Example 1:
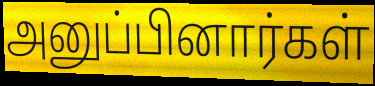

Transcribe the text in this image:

அனுப்பினார்கள்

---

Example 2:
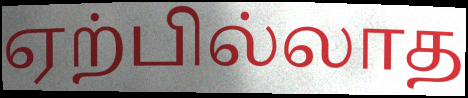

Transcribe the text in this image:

ஏற்பில்லாத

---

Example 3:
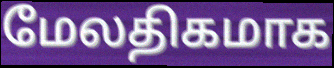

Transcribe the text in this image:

மேலதிகமாக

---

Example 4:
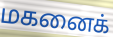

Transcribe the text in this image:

மகனைக்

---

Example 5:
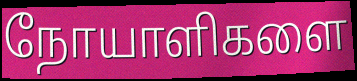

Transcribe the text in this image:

நோயாளிகளை